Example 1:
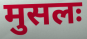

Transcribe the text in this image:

मुसलः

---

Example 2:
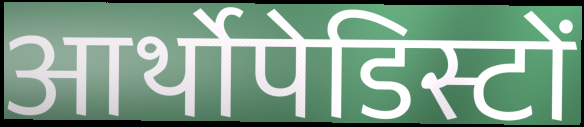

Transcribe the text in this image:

आर्थोपेडिस्टों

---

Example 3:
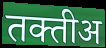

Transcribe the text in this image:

तक्तीअ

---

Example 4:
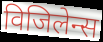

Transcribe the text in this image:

विजिलेन्स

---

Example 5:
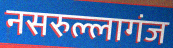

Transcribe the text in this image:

नसरुल्लागंज